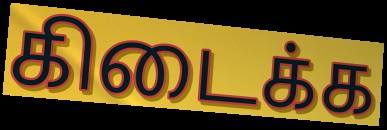
கிடைக்க